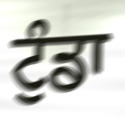
ਟੁੰਡਾ